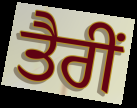
ਤੈਰੀਂ